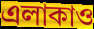
এলাকাও